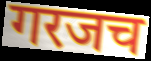
गरजच